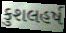
કુશલહર્ષ